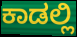
ಕಾಡಲ್ಲಿ